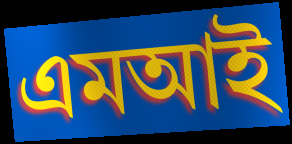
এমআই